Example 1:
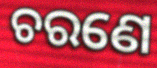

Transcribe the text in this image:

ଚରଣେ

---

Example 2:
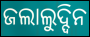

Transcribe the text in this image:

ଜଲାଲୁଦ୍ଦିନ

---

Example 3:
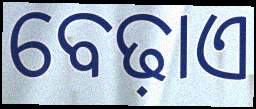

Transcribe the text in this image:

ବେଢ଼ାଏ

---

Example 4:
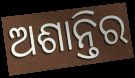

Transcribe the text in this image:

ଅଶାନ୍ତିର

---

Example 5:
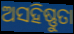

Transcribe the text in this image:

ଅସହିଷ୍ଣୁତା